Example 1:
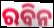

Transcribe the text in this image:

ରବିନ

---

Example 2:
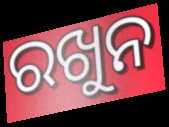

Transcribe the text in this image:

ରଖୁନ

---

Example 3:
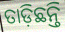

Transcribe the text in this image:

ତାଡ଼ିଛନ୍ତି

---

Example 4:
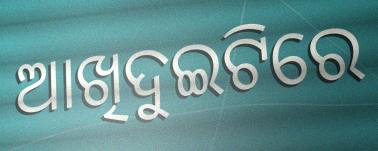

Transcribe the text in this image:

ଆଖିଦୁଇଟିରେ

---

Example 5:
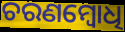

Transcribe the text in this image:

ଚରଣମ୍ବୋଧି